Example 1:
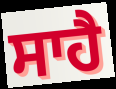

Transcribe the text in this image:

ਸਾਹੈ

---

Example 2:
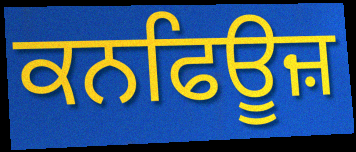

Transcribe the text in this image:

ਕਨਫਿਊਜ਼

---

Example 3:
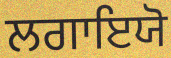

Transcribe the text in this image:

ਲਗਾਇਯੋ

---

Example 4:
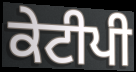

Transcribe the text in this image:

ਕੇਟੀਪੀ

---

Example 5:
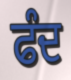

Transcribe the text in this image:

ਫੰਦ